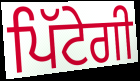
ਪਿੱਟੇਗੀ